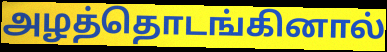
அழத்தொடங்கினால்